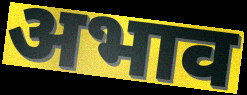
अभाव